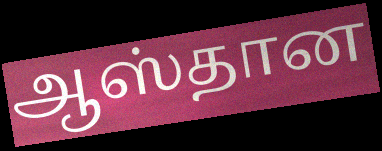
ஆஸ்தான